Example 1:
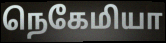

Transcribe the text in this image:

நெகேமியா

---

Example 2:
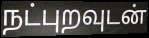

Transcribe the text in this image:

நட்புறவுடன்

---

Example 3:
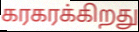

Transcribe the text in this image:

கரகரக்கிறது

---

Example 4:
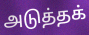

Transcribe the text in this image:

அடுத்தக்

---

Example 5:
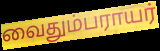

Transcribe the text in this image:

வைதும்பராயர்